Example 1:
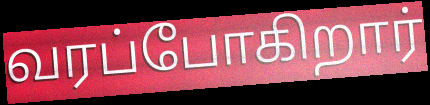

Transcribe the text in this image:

வரப்போகிறார்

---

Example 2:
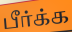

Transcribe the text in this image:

பீர்க்க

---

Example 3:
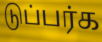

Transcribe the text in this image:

டுப்பர்க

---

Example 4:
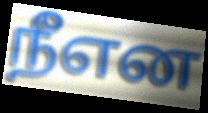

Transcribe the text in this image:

நீஎன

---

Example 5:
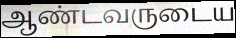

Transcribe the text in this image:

ஆண்டவருடைய